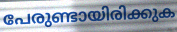
പേരുണ്ടായിരിക്കുക